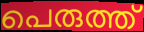
പെരുത്ത്